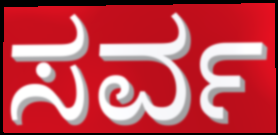
ಸರ್ವ